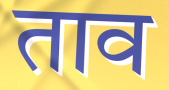
ताव